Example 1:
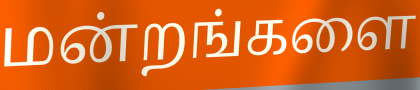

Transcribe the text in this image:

மன்றங்களை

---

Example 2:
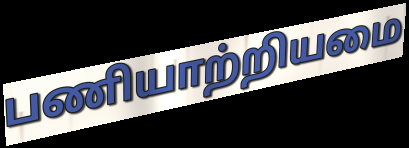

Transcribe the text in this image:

பணியாற்றியமை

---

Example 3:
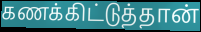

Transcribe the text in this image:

கணக்கிட்டுத்தான்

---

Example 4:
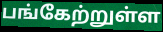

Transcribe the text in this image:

பங்கேற்றுள்ள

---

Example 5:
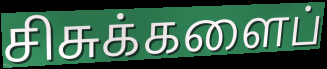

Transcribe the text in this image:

சிசுக்களைப்